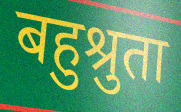
बहुश्रुता